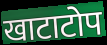
खाटाटोप